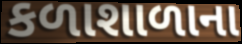
કળાશાળાના